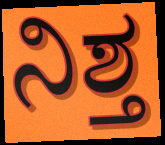
ನಿಶ್ತ